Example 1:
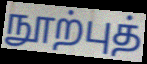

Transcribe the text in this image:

நூற்புத்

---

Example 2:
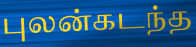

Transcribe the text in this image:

புலன்கடந்த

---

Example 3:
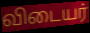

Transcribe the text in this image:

விடையர்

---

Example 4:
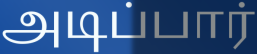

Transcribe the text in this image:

அடிப்பார்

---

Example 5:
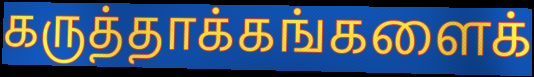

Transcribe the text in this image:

கருத்தாக்கங்களைக்